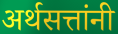
अर्थसत्तांनी